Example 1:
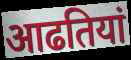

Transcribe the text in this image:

आढतियां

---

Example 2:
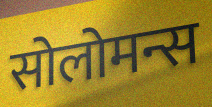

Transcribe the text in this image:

सोलोमन्स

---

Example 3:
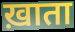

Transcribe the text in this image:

ख़ाता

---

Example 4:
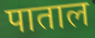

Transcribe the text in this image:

पाताल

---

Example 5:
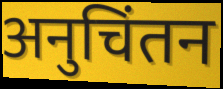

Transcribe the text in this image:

अनुचिंतन